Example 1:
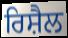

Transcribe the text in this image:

ਰਿਸ਼ੈਲ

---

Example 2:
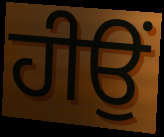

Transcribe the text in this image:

ਹੀਉਂ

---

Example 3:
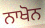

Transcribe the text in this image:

ਨਾਖੋਨ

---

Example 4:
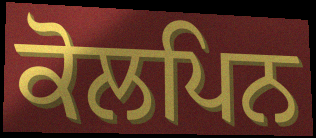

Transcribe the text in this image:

ਕੋਲਪਿਨ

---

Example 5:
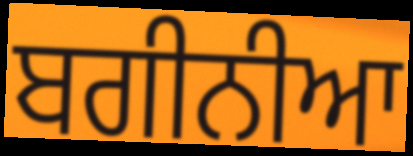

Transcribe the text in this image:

ਬਗੀਨੀਆ